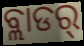
ବ୍ଲାଡର୍